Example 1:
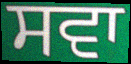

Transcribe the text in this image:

ਸਵਾ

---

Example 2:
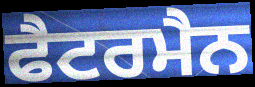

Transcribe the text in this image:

ਫੈਟਰਮੈਨ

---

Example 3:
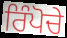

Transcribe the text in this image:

ਰਿੰਪੋਚੇ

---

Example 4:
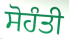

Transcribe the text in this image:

ਸੋਹੰਤੀ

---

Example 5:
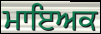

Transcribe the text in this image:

ਮਾਇਅਕ